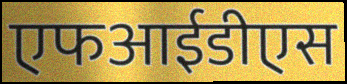
एफआईडीएस